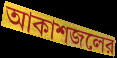
আকাশজলের